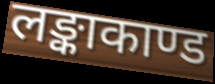
लङ्काकाण्ड